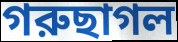
গরুছাগল